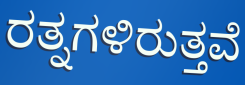
ರತ್ನಗಳಿರುತ್ತವೆ